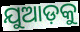
ଯୁଆଡ଼କୁ